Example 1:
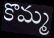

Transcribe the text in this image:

కొమ్మ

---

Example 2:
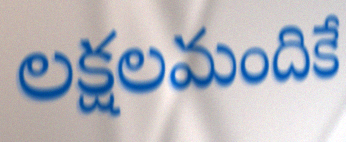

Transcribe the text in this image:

లక్షలమందికే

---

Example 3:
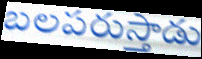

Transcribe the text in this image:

బలపరుస్తాడు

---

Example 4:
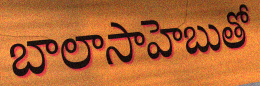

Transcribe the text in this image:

బాలాసాహెబుతో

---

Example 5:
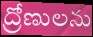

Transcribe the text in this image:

ద్రోణులను